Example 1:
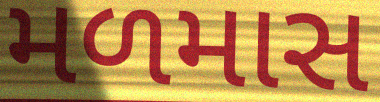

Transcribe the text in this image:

મળમાસ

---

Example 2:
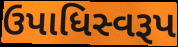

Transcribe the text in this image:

ઉપાધિસ્વરૂપ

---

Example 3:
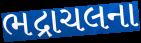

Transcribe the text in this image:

ભદ્રાચલના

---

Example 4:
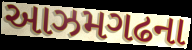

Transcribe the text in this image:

આઝમગઢના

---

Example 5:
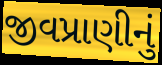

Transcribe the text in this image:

જીવપ્રાણીનું